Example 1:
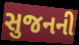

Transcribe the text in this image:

સુજનની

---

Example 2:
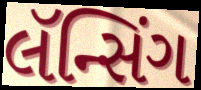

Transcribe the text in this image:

લૅન્સિંગ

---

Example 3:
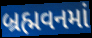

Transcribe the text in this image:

બ્રહ્મવનમાં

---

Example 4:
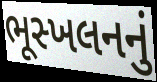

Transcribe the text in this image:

ભૂસ્ખલનનું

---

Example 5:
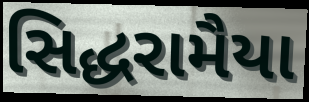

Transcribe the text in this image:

સિદ્ધરામૈયા